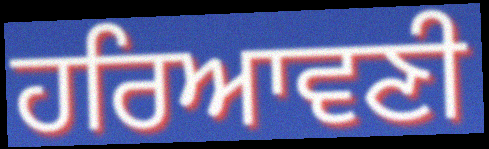
ਹਰਿਆਵਣੀ